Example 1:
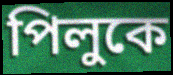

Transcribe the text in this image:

পিলুকে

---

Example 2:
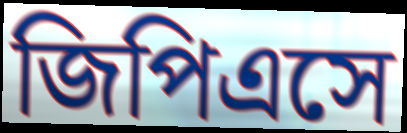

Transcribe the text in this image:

জিপিএসে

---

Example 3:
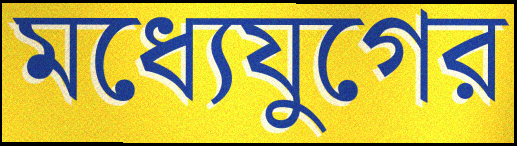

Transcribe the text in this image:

মধ্যেযুগের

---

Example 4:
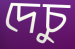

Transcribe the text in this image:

দেচু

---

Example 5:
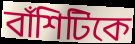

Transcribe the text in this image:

বাঁশিটিকে